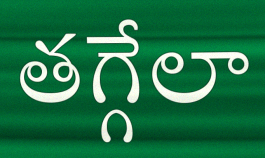
తగ్గేలా